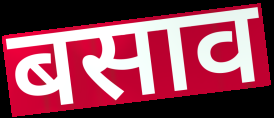
बसाव